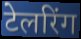
टेलरिंग